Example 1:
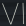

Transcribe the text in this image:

VI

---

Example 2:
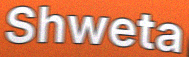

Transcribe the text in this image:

Shweta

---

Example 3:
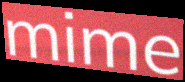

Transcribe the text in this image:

mime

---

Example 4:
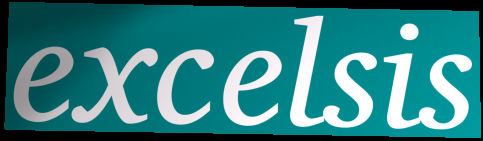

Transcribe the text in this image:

excelsis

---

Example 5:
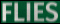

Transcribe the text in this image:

FLIES